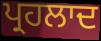
ਪ੍ਰਹਲਾਦ